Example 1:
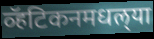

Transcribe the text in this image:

व्हॅटिकनमधल्या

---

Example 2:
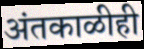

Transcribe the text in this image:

अंतकाळीही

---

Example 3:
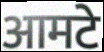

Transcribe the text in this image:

आमटे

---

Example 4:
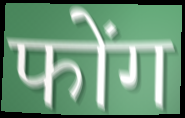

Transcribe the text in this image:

फोंग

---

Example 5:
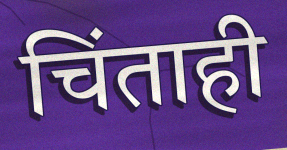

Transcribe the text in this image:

चिंताही